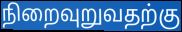
நிறைவுறுவதற்கு